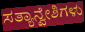
ಸತ್ಯಾನ್ವೇಶಿಗಳು